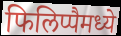
फिलिप्पैमध्ये